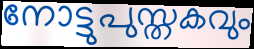
നോട്ടുപുസ്തകവും